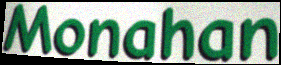
Monahan